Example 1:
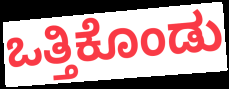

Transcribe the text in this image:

ಒತ್ತಿಕೊಂಡು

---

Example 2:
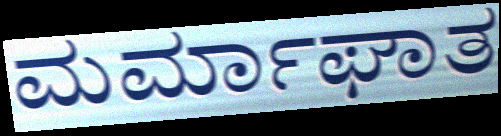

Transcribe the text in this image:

ಮರ್ಮಾಘಾತ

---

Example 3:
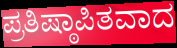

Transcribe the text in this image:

ಪ್ರತಿಷ್ಠಾಪಿತವಾದ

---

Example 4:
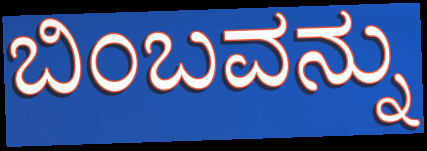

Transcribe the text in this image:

ಬಿಂಬವನ್ನು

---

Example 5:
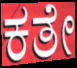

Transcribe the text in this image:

ಕತೇ